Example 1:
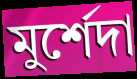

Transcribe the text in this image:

মুর্শেদা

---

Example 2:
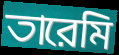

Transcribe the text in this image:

তারেমি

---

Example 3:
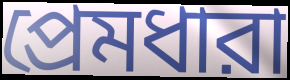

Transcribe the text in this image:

প্রেমধারা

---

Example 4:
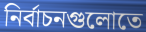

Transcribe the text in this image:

নির্বাচনগুলোতে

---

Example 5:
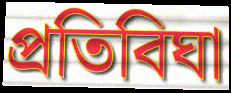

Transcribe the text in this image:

প্রতিবিঘা